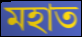
মহাত